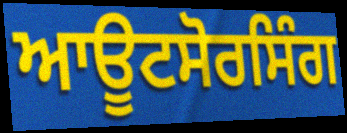
ਆਊਟਸੋਰਸਿੰਗ